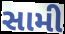
સામી